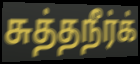
சுத்தநீர்க்